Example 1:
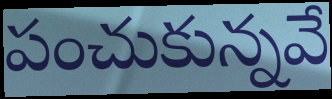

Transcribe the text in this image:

పంచుకున్నవే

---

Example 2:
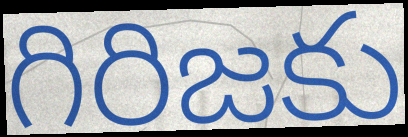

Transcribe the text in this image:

గిరిజకు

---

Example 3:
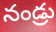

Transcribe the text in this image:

నండ్రు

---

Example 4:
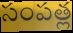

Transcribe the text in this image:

సంపత్ల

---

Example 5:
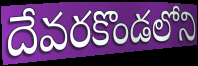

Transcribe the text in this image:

దేవరకొండలోని